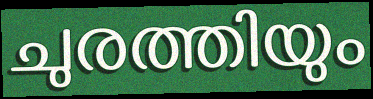
ചുരത്തിയും